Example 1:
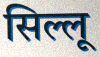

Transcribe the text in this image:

सिल्लू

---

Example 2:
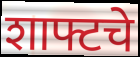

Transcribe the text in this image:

शाफ्टचे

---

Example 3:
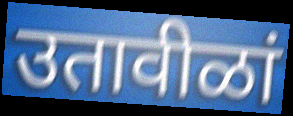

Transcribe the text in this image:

उतावीळां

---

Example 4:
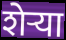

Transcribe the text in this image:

शेऱ्या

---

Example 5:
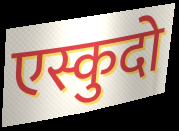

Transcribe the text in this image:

एस्कुदो